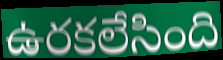
ఉరకలేసింది